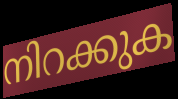
നിറക്കുക